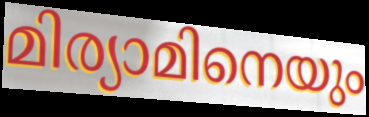
മിര്യാമിനെയും